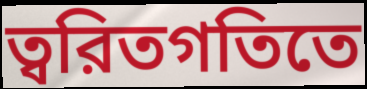
ত্বরিতগতিতে